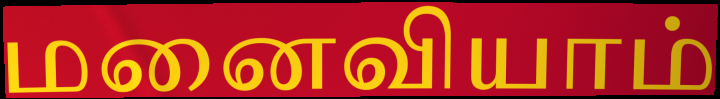
மனைவியாம்